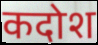
कदोश